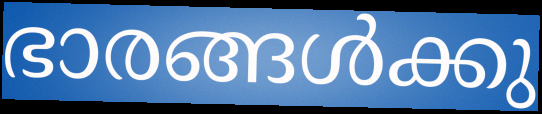
ഭാരങ്ങൾക്കു